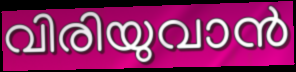
വിരിയുവാൻ